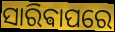
ସାରିଵାପରେ